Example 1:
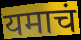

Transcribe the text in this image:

यमाचं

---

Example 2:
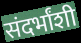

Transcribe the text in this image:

संदर्भांशी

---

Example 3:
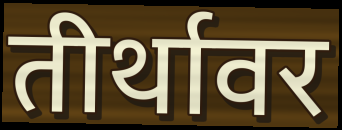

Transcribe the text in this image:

तीर्थावर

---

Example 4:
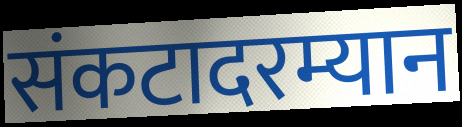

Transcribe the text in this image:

संकटादरम्यान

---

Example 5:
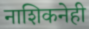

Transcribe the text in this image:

नाशिकनेही